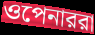
ওপেনাররা